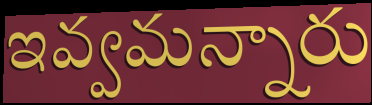
ఇవ్వమన్నారు